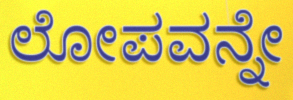
ಲೋಪವನ್ನೇ